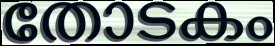
തോടകം